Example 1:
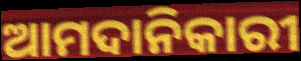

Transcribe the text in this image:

ଆମଦାନିକାରୀ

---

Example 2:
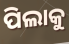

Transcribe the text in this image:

ପିଲାକୁ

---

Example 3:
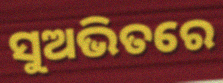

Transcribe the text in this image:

ସୁଅଭିତରେ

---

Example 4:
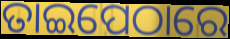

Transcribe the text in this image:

ତାଇପେଠାରେ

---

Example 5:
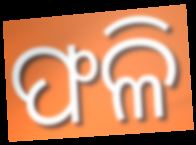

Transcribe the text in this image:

ଫଳି